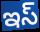
ఇస్